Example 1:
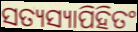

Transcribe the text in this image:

ସତ୍ୟସ୍ୟାପିହିତଂ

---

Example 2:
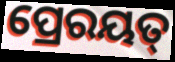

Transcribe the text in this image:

ପ୍ରେରୟତ୍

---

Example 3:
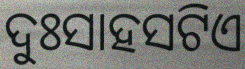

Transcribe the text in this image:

ଦୁଃସାହସଟିଏ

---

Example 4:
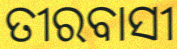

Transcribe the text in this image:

ତୀରବାସୀ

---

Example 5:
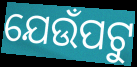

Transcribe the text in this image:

ଯେଉଁପଟୁ